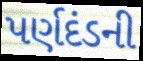
પર્ણદંડની